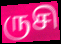
ருசி